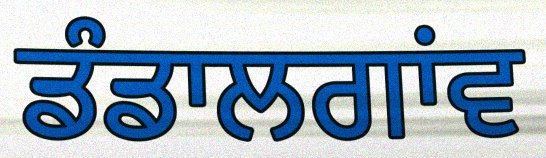
ਡੰਡਾਲਗਾਂਵ